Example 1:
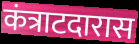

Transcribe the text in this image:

कंत्राटदारास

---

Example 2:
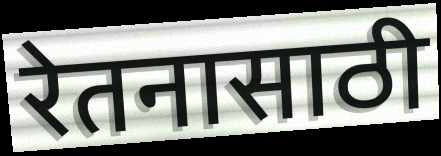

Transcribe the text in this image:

रेतनासाठी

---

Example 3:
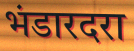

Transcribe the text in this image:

भंडारदरा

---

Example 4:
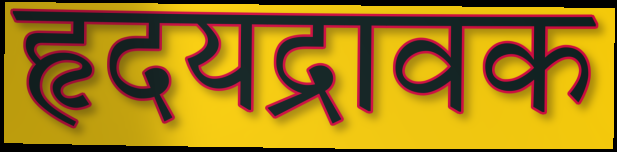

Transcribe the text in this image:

हृदयद्रावक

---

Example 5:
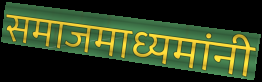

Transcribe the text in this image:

समाजमाध्यमांनी